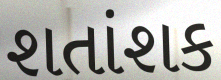
શતાંશક